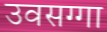
उवसग्गा